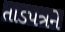
તાડપત્રને